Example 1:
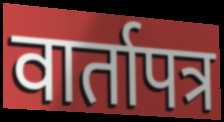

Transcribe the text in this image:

वार्तापत्र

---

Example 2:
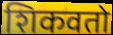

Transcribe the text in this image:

शिकवतो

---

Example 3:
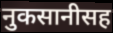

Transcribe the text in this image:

नुकसानीसह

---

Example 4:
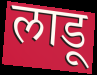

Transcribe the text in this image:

लाडू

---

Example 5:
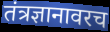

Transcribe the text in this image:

तंत्रज्ञानावरच